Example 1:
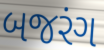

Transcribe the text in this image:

બજરંગ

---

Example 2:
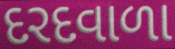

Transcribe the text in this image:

દરદવાળા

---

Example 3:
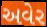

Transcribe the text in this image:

અવેર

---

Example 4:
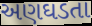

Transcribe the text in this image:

અણઘડતા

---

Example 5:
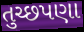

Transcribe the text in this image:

તુચ્છપણા